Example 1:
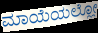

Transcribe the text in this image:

ಮಾಯೆಯಲ್ಲೋ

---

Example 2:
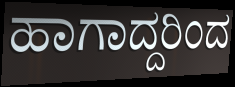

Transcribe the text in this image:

ಹಾಗಾದ್ದರಿಂದ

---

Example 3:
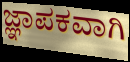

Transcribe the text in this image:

ಜ್ಞಾಪಕವಾಗಿ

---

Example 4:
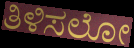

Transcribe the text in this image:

ತಿಳಿಸಲೋ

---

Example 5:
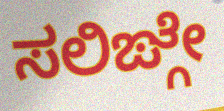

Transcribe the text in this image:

ಸಲಿಙ್ಗೇ